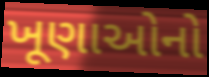
ખૂણાઓનો